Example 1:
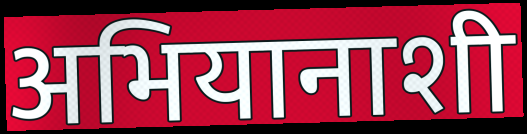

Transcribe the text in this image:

अभियानाशी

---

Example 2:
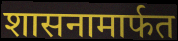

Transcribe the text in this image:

शासनामार्फत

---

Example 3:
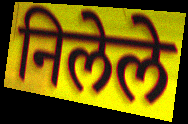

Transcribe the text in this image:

निलेले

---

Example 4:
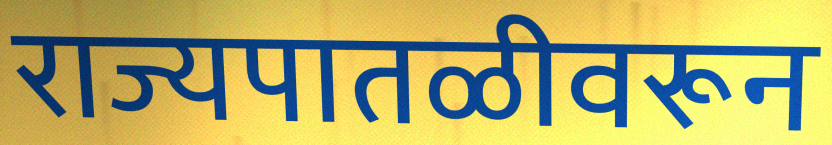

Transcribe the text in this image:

राज्यपातळीवरून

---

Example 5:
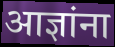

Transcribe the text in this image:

आज्ञांना